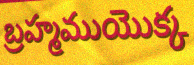
బ్రహ్మముయొక్క